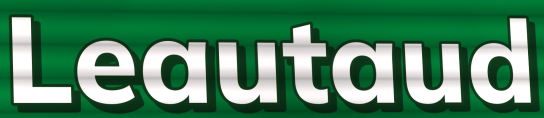
Leautaud